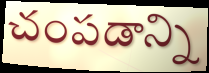
చంపడాన్ని